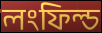
লংফিল্ড